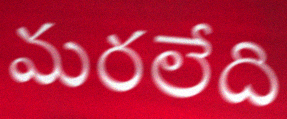
మరలేది